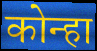
कोन्हा